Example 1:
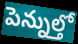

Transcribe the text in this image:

పెన్నుల్తో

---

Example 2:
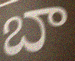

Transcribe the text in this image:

బా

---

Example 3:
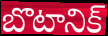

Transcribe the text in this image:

బొటానిక్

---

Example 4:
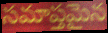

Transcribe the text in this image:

సమాప్తమైన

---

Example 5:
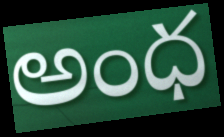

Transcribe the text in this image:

అంధ